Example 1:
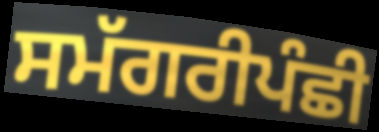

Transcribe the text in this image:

ਸਮੱਗਰੀਪੰਛੀ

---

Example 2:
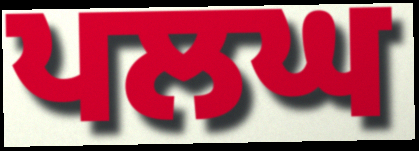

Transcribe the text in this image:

ਪਲਘ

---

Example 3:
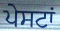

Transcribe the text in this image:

ਪੇਸਟਾਂ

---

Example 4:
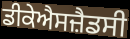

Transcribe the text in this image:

ਡੀਕੇਐਸਜ਼ੈਡਸੀ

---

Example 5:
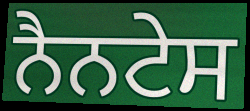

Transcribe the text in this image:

ਨੈਨਟੇਸ